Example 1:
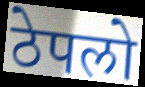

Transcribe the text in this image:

ठेपलो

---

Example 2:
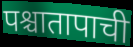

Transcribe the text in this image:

पश्चातापाची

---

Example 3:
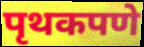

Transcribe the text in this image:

पृथकपणे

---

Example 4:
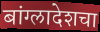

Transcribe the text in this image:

बांग्लादेशचा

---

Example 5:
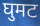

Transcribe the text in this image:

घुमट